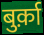
बुर्क़ा